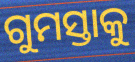
ଗୁମସ୍ତାକୁ